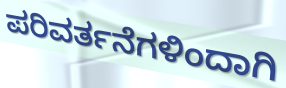
ಪರಿವರ್ತನೆಗಳಿಂದಾಗಿ